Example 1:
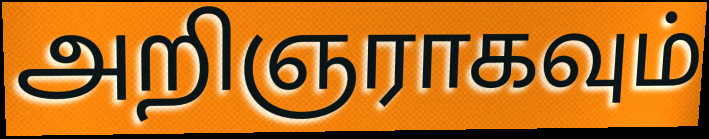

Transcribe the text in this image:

அறிஞராகவும்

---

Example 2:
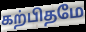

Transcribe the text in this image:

கற்பிதமே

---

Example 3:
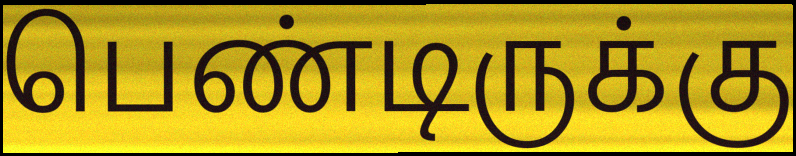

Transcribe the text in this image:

பெண்டிருக்கு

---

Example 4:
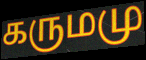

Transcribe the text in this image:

கருமமு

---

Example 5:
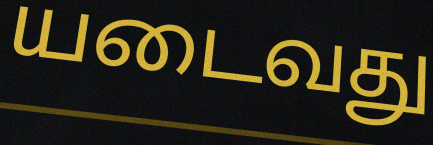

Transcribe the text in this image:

யடைவது